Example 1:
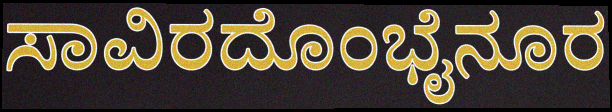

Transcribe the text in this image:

ಸಾವಿರದೊಂಭೈನೂರ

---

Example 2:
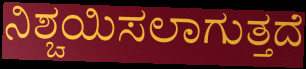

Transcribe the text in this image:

ನಿಶ್ಚಯಿಸಲಾಗುತ್ತದೆ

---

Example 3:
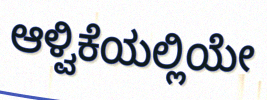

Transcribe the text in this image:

ಆಳ್ವಿಕೆಯಲ್ಲಿಯೇ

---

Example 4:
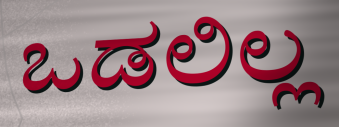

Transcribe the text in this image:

ಒಡಲಿಲ್ಲ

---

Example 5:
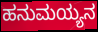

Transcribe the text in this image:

ಹನುಮಯ್ಯನ